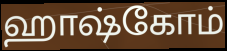
ஹாஷ்கோம்